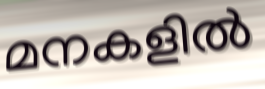
മനകളിൽ